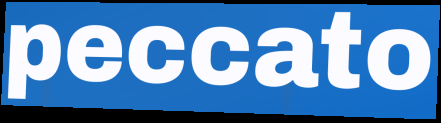
peccato